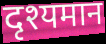
दृश्यमान